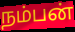
நம்பன்